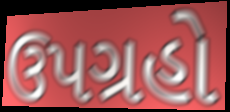
ઉપગ્રહો